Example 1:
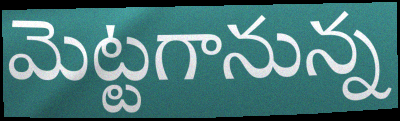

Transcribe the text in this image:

మెట్టగానున్న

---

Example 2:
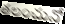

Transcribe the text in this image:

తలంచునో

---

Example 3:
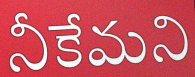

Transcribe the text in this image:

నీకేమని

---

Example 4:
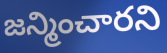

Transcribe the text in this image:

జన్మించారని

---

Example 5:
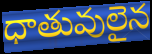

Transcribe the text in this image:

ధాతువులైన